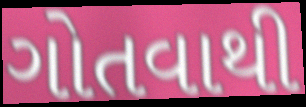
ગોતવાથી